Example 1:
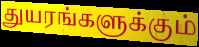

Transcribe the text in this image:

துயரங்களுக்கும்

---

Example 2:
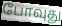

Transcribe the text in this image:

போவுது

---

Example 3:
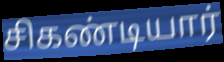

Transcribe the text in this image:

சிகண்டியார்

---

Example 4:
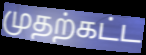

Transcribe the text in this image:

முதற்கட்ட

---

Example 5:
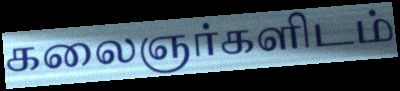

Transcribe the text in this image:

கலைஞர்களிடம்